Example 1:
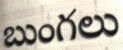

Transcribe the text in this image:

బుంగలు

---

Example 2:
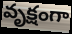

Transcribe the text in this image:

వృక్షంగా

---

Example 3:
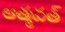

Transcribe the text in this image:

ఆత్మవత్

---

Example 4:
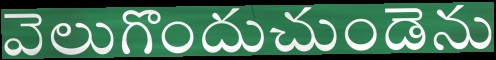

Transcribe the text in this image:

వెలుగొందుచుండెను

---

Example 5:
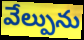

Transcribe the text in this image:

వేల్పును